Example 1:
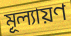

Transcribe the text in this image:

মূল্যায়ণ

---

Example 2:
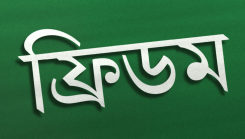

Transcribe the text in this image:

ফ্ৰিডম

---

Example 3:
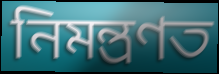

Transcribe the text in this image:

নিমন্ত্ৰণত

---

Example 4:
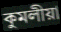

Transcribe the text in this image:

কুমলীয়া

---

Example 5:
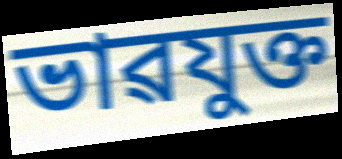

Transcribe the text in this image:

ভাৱযুক্ত